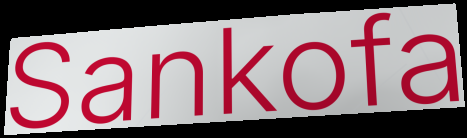
Sankofa